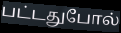
பட்டதுபோல்